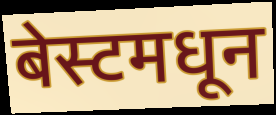
बेस्टमधून